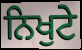
ਨਿਖੁਟੇ